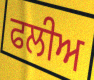
ਫਲੀਅ